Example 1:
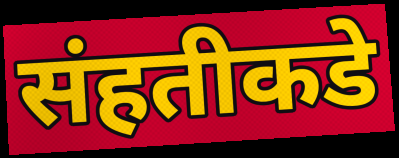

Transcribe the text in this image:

संहतीकडे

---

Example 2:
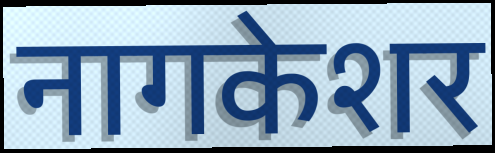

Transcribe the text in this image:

नागकेशर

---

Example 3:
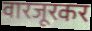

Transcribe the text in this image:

वारजूरकर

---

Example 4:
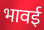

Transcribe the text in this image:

भावई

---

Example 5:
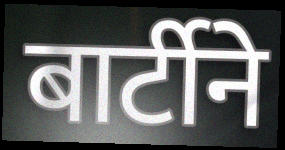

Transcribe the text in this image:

बार्टीने